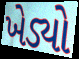
ખેડ્યો